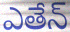
ఎతేన్